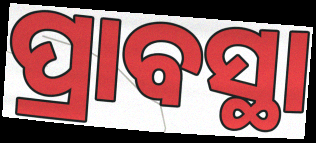
ପ୍ରାବସ୍ଥା